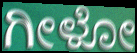
ಗೀಳೋ